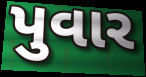
પુવાર